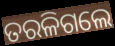
ତରଳିଗଲେ